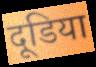
दूडिया